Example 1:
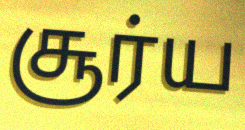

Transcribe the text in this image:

சூர்ய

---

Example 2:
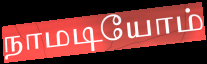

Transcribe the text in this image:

நாமடியோம்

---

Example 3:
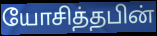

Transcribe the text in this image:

யோசித்தபின்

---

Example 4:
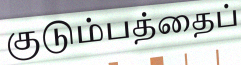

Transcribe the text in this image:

குடும்பத்தைப்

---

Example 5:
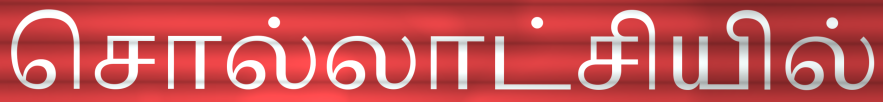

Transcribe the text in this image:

சொல்லாட்சியில்